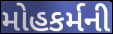
મોહકર્મની